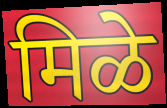
मिळे